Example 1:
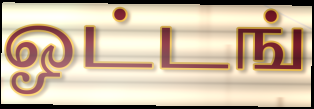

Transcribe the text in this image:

ஓட்டங்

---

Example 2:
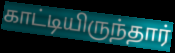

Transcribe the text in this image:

காட்டியிருந்தார்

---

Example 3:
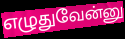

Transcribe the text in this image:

எழுதுவேன்னு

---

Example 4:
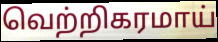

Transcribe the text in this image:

வெற்றிகரமாய்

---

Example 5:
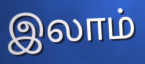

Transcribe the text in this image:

இலாம்